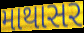
માથાસર